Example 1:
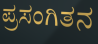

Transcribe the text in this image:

ಪ್ರಸಂಗಿತನ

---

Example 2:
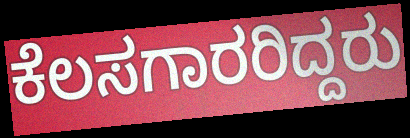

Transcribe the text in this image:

ಕೆಲಸಗಾರರಿದ್ದರು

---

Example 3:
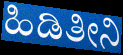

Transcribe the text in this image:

ಹಿಡಿತೀನಿ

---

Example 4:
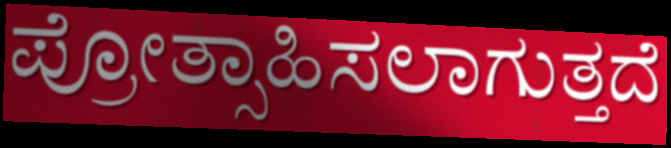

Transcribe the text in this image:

ಪ್ರೋತ್ಸಾಹಿಸಲಾಗುತ್ತದೆ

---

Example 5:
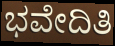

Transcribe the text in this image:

ಭವೇದಿತಿ